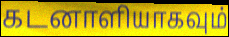
கடனாளியாகவும்